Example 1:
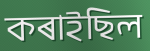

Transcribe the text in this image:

কৰাইছিল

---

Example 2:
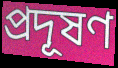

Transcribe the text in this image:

প্ৰদূষণ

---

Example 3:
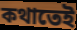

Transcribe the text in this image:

কথাতেই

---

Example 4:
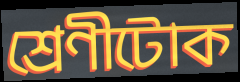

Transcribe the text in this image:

শ্ৰেণীটোক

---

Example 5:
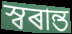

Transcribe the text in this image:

স্বৰান্ত